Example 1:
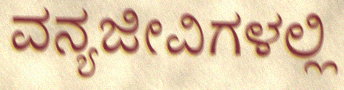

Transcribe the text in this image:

ವನ್ಯಜೀವಿಗಳಲ್ಲಿ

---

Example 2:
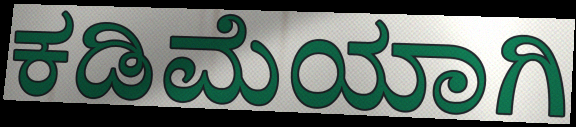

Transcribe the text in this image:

ಕಡಿಮೆಯಾಗಿ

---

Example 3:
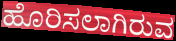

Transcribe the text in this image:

ಹೊರಿಸಲಾಗಿರುವ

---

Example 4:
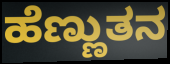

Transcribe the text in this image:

ಹೆಣ್ಣುತನ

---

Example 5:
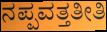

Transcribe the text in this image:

ನಪ್ಪವತ್ತತೀತಿ